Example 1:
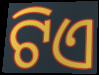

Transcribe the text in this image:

ଟିଏ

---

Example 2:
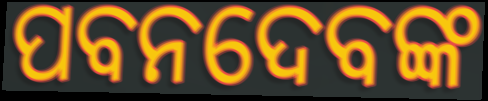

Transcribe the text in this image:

ପବନଦେବଙ୍କ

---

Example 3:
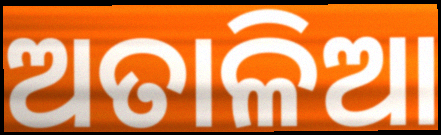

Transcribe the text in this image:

ଅତାଳିଆ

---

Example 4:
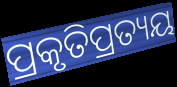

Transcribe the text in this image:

ପ୍ରକୃତିପ୍ରତ୍ୟୟ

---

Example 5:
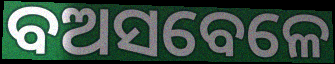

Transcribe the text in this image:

ବଅସବେଳେ